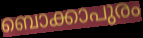
ബൊക്കാപുരം